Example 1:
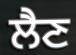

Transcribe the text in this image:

ਲੈਣ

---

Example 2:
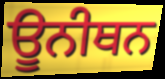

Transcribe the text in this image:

ਊਨੀਥਨ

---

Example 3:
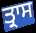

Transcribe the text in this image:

ਤ੍ਰਾਸ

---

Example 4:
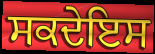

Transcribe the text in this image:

ਸਕਦੇਇਸ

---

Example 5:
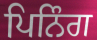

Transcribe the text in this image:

ਪਿਨਿੰਗ